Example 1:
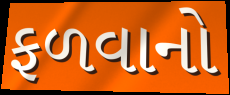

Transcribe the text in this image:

ફળવાનો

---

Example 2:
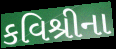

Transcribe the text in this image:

કવિશ્રીના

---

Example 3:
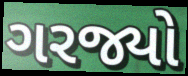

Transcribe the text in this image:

ગરજ્યો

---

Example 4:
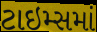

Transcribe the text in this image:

ટાઇમ્સમાં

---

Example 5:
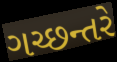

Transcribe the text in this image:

ગચ્છન્તરે